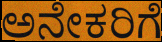
ಅನೇಕರಿಗೆ